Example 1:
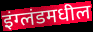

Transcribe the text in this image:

इंग्लंडमधील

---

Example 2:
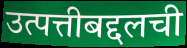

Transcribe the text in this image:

उत्पत्तीबद्दलची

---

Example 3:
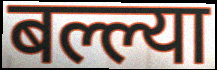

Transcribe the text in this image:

बल्ल्या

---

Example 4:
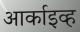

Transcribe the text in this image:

आर्काइव्ह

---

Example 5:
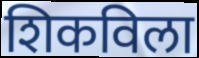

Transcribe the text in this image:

शिकविला